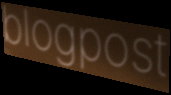
blogpost